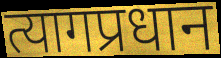
त्यागप्रधान